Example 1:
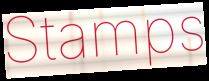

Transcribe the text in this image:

Stamps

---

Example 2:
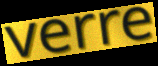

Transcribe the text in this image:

verre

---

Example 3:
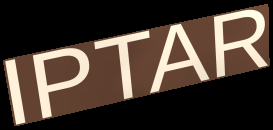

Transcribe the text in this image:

IPTAR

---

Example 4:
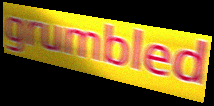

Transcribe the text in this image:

grumbled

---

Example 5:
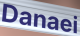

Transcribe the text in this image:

Danaei